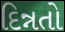
દિન્નતો